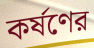
কর্ষণের